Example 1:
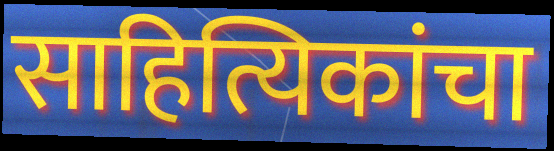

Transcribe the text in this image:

साहित्यिकांचा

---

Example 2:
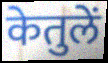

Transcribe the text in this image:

केतुलें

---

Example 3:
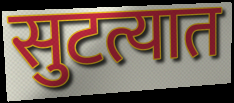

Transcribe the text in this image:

सुटत्यात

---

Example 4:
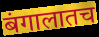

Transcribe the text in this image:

बंगालातच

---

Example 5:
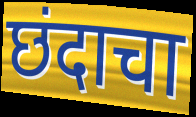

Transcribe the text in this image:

छंदाचा